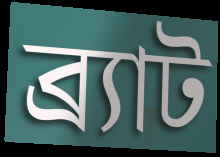
ব্র্যাট